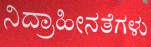
ನಿದ್ರಾಹೀನತೆಗಳು